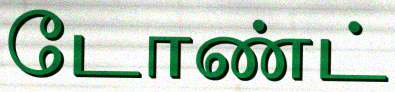
டோண்ட்